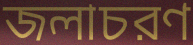
জলাচরণ